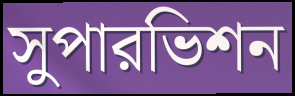
সুপারভিশন